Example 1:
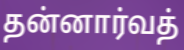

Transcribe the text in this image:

தன்னார்வத்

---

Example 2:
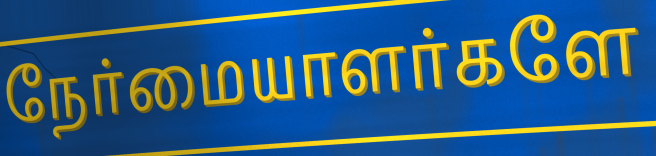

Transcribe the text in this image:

நேர்மையாளர்களே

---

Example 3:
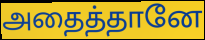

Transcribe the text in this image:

அதைத்தானே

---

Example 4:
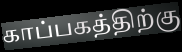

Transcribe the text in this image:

காப்பகத்திற்கு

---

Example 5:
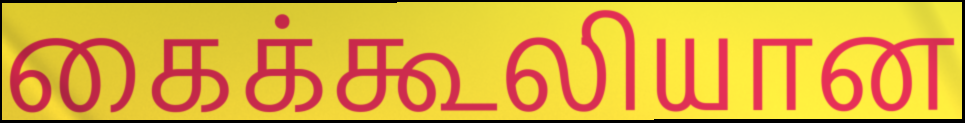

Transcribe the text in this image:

கைக்கூலியான